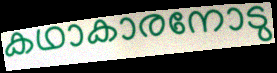
കഥാകാരനോടു